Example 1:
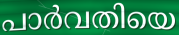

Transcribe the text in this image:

പാർവതിയെ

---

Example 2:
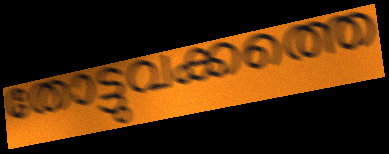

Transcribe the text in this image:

തോട്ടുവക്കത്തെ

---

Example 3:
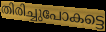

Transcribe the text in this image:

തിരിച്ചുപോകട്ടെ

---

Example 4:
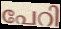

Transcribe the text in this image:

പേറി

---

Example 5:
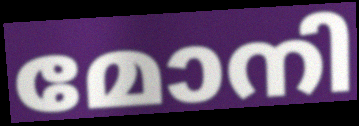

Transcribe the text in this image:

മോനി